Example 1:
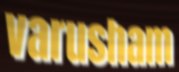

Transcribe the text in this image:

varusham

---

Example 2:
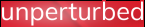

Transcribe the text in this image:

unperturbed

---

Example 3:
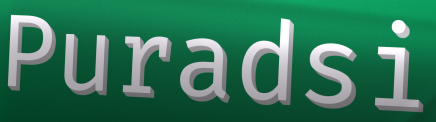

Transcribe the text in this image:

Puradsi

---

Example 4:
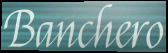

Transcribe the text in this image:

Banchero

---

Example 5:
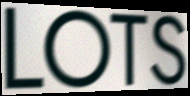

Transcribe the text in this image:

LOTS